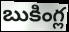
బుకింగ్ల